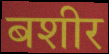
बशीर